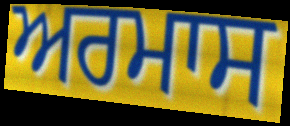
ਅਰਮਾਸ